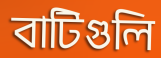
বাটিগুলি